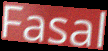
Fasal